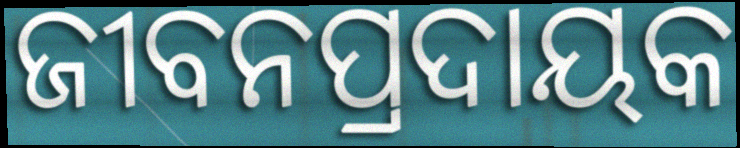
ଜୀବନପ୍ରଦାୟକ